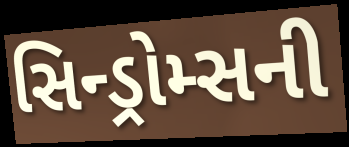
સિન્ડ્રોમ્સની